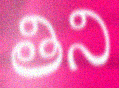
తిని